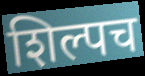
शिल्पच